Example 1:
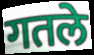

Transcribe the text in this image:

गतले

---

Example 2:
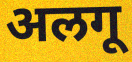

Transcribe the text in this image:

अलगू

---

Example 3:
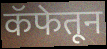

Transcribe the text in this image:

कॅफेतून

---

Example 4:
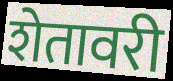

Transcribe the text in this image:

शेतावरी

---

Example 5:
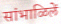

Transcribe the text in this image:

सांभाळिलें